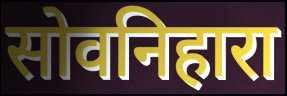
सोवनिहारा